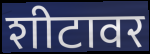
शीटावर